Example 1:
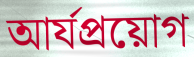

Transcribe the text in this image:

আর্যপ্রয়োগ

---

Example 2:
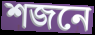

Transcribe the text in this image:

শজনে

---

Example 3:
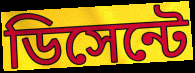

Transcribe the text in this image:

ডিসেন্টে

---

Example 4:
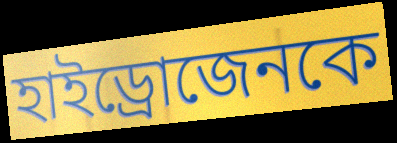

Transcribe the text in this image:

হাইড্রোজেনকে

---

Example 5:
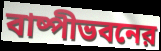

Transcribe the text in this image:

বাষ্পীভবনের